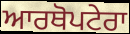
ਆਰਥੋਪਟੇਰਾ